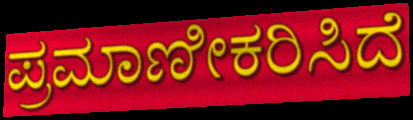
ಪ್ರಮಾಣೀಕರಿಸಿದೆ